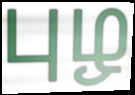
புழ